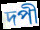
দপী